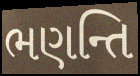
ભણન્તિ